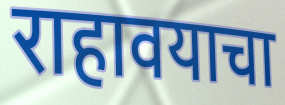
राहावयाचा